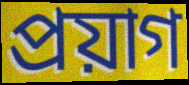
প্ৰয়াগ